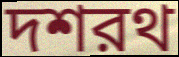
দশরথ